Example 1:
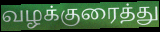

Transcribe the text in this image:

வழக்குரைத்து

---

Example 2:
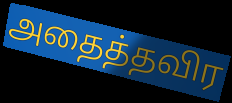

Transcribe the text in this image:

அதைத்தவிர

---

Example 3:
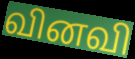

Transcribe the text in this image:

வினவி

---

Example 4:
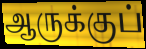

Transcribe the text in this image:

ஆருக்குப்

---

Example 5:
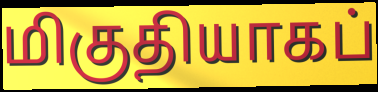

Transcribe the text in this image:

மிகுதியாகப்